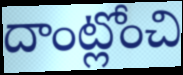
దాంట్లోంచి